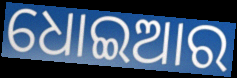
ଧୋଇଆର